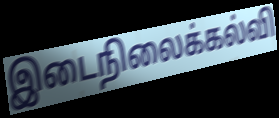
இடைநிலைக்கல்வி